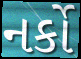
નર્કો